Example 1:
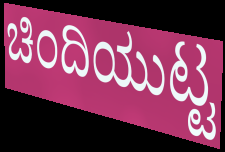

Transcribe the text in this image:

ಚಿಂದಿಯುಟ್ಟ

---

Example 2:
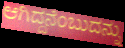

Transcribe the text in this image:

ಆಗಿದ್ದನೆಂಬುದನ್ನು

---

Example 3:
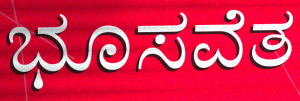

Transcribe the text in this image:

ಭೂಸವೆತ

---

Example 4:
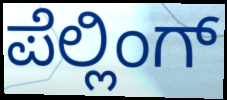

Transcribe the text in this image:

ಪೆಲ್ಲಿಂಗ್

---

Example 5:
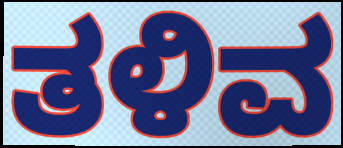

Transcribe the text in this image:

ತಳಿವ